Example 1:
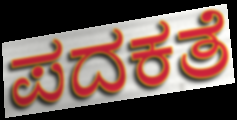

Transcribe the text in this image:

ಪದಕತೆ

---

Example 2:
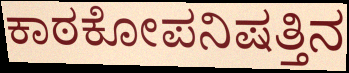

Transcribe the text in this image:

ಕಾಠಕೋಪನಿಷತ್ತಿನ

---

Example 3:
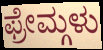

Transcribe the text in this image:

ಫ್ರೇಮ್ಗಳು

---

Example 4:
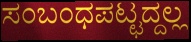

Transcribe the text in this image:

ಸಂಬಂಧಪಟ್ಟದ್ದಲ್ಲ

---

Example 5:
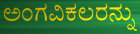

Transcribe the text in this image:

ಅಂಗವಿಕಲರನ್ನು